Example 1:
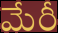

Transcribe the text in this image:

మేరీ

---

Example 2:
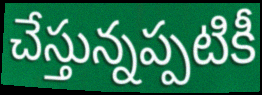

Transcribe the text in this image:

చేస్తున్నప్పటికీ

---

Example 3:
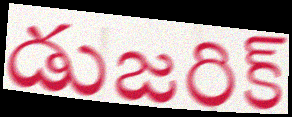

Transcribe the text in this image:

డుజరిక్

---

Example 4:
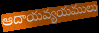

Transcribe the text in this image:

ఆదాయవ్యయములు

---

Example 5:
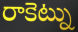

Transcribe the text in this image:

రాకెట్ను